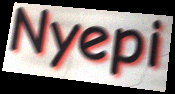
Nyepi